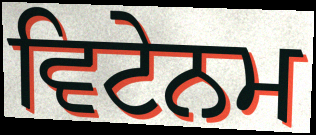
ਵਿਟੇਨਮ